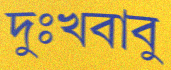
দুঃখবাবু